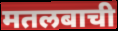
मतलबाची